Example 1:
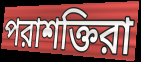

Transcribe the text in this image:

পরাশক্তিরা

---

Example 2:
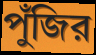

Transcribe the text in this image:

পুঁজির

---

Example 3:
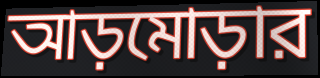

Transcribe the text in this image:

আড়মোড়ার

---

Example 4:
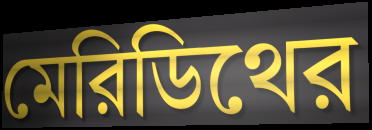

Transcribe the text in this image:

মেরিডিথের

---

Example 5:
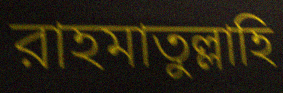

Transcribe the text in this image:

রাহমাতুল্লাহি